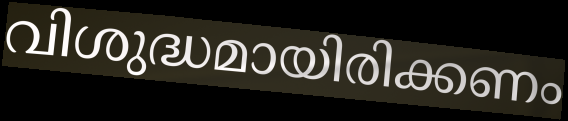
വിശുദ്ധമായിരിക്കണം